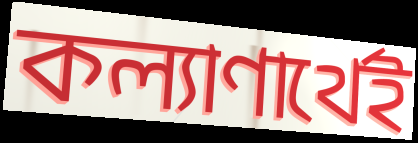
কল্যাণার্থেই